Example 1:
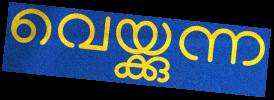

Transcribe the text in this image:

വെയ്ക്കുന്ന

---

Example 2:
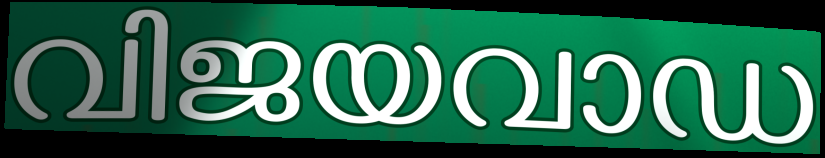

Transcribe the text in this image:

വിജയവാഡ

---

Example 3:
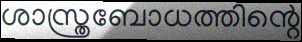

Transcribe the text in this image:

ശാസ്ത്രബോധത്തിന്റെ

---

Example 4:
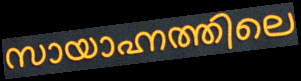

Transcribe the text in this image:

സായാഹ്നത്തിലെ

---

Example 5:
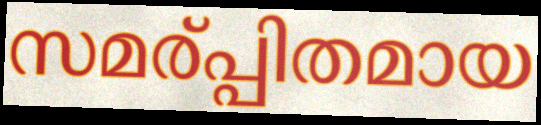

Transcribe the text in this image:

സമര്പ്പിതമായ